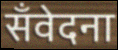
सँवेदना